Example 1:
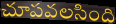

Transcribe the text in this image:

చూపవలసింది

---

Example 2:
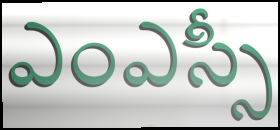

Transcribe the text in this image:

ఎంఎస్సీ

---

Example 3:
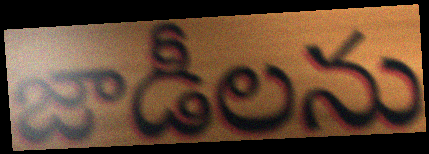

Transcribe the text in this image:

జాడీలను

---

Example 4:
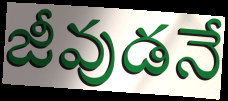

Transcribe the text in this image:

జీవుడనే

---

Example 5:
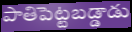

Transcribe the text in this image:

పాతిపెట్టబడ్డాడు